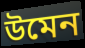
উমেন